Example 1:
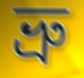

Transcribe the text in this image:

ভ্রু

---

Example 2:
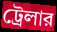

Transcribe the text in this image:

ট্রেলার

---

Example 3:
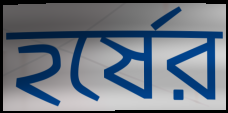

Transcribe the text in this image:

হর্ষের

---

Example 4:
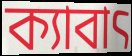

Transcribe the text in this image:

ক্যাবাৎ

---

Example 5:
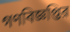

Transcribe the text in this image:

গণবিজ্ঞপ্তির